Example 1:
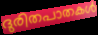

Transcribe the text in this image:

ദുരിതപാതകൾ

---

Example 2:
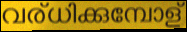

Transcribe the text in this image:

വര്ധിക്കുമ്പോള്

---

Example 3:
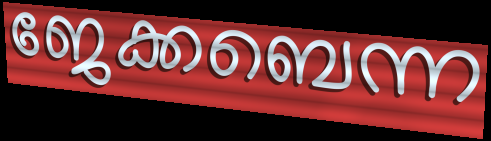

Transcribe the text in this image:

ജേക്കബെന്ന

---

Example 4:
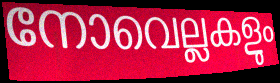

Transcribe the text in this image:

നോവെല്ലകളും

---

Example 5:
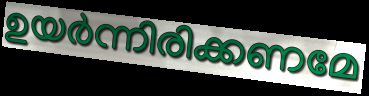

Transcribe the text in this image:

ഉയർന്നിരിക്കണമേ